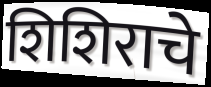
शिशिराचे